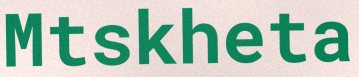
Mtskheta